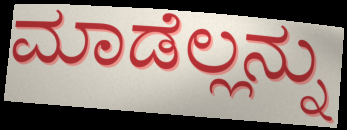
ಮಾಡೆಲ್ಲನ್ನು